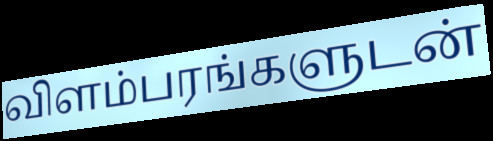
விளம்பரங்களுடன்